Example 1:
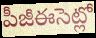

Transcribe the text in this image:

పీజీఈసెట్లో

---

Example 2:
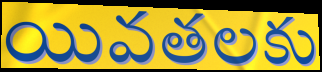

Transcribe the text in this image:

యివతలకు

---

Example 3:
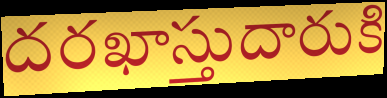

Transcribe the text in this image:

దరఖాస్తుదారుకి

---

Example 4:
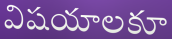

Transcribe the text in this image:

విషయాలకూ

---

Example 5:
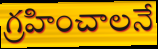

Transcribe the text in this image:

గ్రహించాలనే